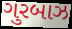
ગુરબાઝ